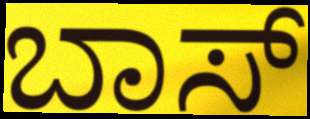
ಬಾಸ್